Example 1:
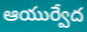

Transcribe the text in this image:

ఆయుర్వేద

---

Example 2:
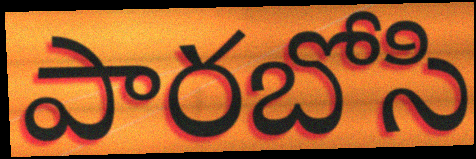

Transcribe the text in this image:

పారబోసి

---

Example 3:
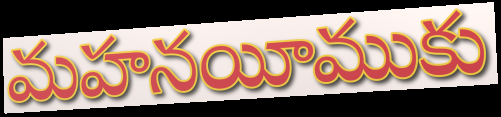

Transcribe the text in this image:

మహనయీముకు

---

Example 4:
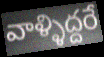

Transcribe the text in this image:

వాళ్ళిద్దరే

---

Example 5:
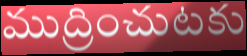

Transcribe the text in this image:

ముద్రించుటకు